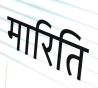
मारिति